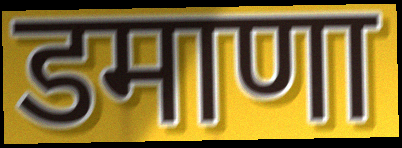
डमाणा